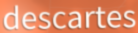
descartes